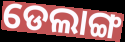
ଡେଲାଙ୍ଗ